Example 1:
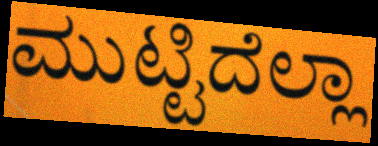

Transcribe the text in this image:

ಮುಟ್ಟಿದೆಲ್ಲಾ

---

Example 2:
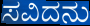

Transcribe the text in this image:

ಸವಿದನು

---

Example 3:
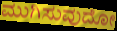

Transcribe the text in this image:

ಮುಗಿಸುವುದೋ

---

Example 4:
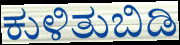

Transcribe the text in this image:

ಕುಳಿತುಬಿಡಿ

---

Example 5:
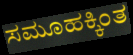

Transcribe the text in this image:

ಸಮೂಹಕ್ಕಿಂತ